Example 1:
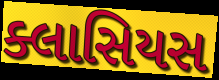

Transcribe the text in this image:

ક્લાસિયસ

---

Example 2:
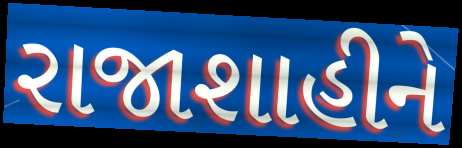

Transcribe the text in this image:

રાજાશાહીને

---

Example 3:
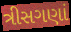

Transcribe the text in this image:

ત્રીસગણાં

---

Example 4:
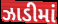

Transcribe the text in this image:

ઝાડીમાં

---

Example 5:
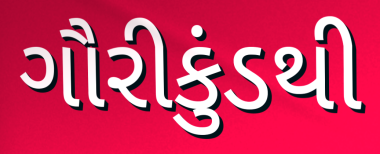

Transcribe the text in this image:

ગૌરીકુંડથી